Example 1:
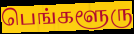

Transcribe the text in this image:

பெங்களூரு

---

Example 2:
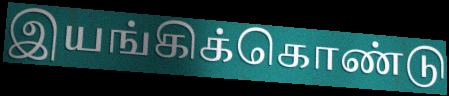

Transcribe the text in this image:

இயங்கிக்கொண்டு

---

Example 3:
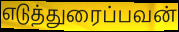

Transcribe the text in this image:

எடுத்துரைப்பவன்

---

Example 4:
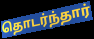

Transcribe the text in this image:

தொடர்ந்தார்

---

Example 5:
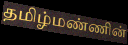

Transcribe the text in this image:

தமிழ்மண்ணின்